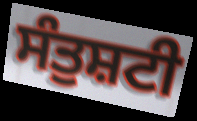
ਸੰਤੁਸ਼ਟੀ